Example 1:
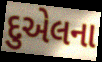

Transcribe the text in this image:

દુએલના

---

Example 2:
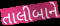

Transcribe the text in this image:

તાલીબાને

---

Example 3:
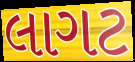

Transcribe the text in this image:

લાગટ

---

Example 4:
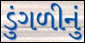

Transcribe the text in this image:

ડુંગળીનું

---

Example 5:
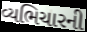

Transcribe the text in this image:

વ્યભિચારની